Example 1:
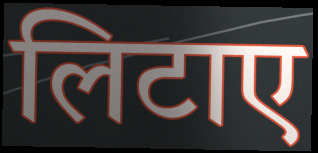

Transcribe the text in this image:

लिटाए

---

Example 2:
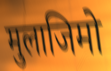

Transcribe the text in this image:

मुलाजिमो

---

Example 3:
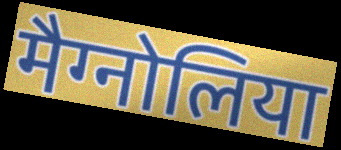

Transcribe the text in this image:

मैग्नोलिया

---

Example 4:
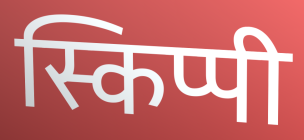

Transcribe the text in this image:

स्किप्पी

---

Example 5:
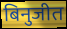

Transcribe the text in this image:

बिनुजीत